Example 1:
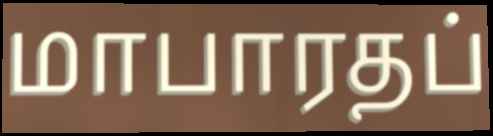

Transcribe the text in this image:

மாபாரதப்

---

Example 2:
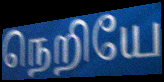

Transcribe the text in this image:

நெறியே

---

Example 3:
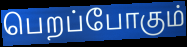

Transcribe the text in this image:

பெறப்போகும்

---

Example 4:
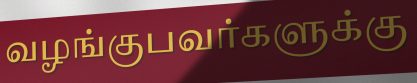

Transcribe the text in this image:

வழங்குபவர்களுக்கு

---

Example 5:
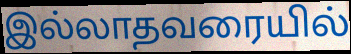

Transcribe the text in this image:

இல்லாதவரையில்